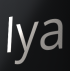
Iya